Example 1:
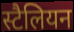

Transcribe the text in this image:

स्टैलियन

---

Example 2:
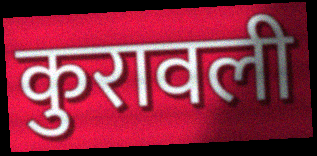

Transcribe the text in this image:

कुरावली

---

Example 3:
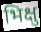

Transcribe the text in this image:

भिक्षु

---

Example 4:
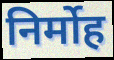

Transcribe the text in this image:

निर्मोह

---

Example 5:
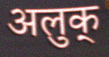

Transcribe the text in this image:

अलुक्